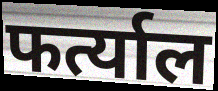
फर्त्याल